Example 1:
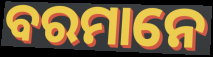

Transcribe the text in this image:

ବରମାନେ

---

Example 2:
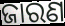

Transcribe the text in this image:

ଜାରଣ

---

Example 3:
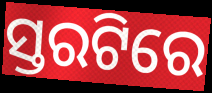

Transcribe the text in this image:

ସ୍ତରଟିରେ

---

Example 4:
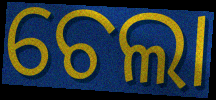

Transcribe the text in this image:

ଚେଲା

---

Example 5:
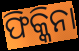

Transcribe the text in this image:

ଫିକ୍କିନା